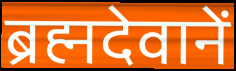
ब्रह्मदेवानें